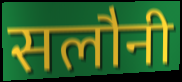
सलौनी